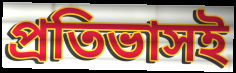
প্রতিভাসই